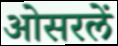
ओसरलें